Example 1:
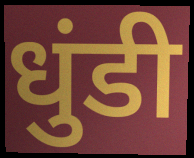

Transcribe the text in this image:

धुंडी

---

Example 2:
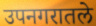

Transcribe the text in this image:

उपनगरातले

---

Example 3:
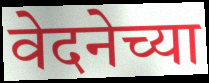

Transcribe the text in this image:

वेदनेच्या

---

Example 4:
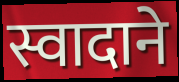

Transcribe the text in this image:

स्वादाने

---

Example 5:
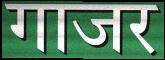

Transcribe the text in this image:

गाजर